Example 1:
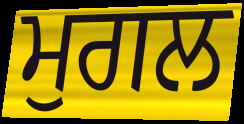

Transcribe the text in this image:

ਮੁਗਲ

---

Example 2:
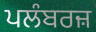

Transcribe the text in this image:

ਪਲੰਬਰਜ਼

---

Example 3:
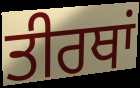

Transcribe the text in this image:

ਤੀਰਥਾਂ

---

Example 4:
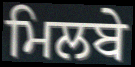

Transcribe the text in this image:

ਮਿਲਬੇ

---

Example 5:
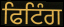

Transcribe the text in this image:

ਫਿਟਿੰਗ